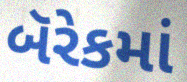
બૅરેકમાં